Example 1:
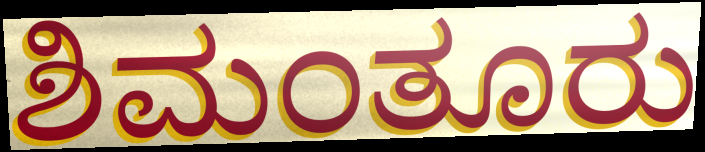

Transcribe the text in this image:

ಶಿಮಂತೂರು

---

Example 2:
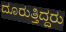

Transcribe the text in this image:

ದೂರುತ್ತಿದ್ದರು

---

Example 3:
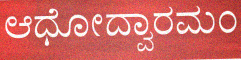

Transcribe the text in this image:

ಆಧೋದ್ವಾರಮಂ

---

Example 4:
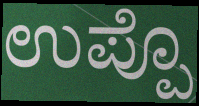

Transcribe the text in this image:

ಉಪ್ಪೊ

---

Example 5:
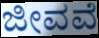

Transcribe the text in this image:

ಜೀವವೆ